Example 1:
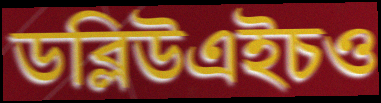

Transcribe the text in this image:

ডব্লিউএইচও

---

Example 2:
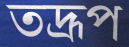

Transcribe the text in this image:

তদ্রূপ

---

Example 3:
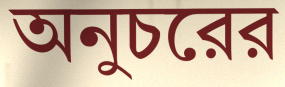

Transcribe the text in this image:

অনুচরের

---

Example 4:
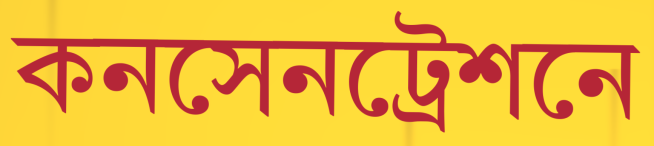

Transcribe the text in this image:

কনসেনট্রেশনে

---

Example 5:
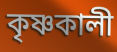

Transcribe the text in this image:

কৃষ্ণকালী